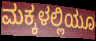
ಮಕ್ಕಳಲ್ಲಿಯೂ